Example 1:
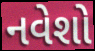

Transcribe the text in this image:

નવેશો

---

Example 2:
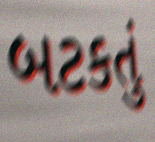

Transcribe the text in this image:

બટકતું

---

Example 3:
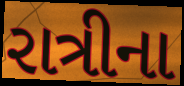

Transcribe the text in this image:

રાત્રીના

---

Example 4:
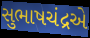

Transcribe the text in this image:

સુભાષચંદ્રએ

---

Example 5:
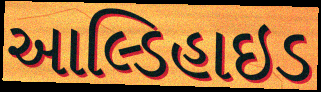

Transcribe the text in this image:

આલ્ડિહાઇડ